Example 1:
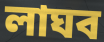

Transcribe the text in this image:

লাঘব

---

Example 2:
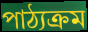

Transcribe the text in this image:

পাঠ্য়ক্ৰম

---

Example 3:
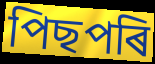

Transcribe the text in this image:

পিছপৰি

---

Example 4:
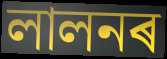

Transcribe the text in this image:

লালনৰ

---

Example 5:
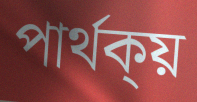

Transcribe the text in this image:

পাৰ্থক্য়